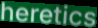
heretics